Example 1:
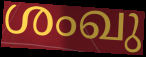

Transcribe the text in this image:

ശംഖു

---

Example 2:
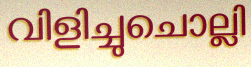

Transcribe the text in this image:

വിളിച്ചുചൊല്ലി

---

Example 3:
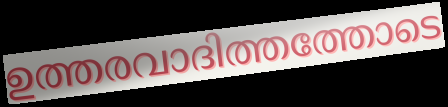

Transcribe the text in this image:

ഉത്തരവാദിത്തത്തോടെ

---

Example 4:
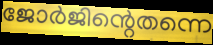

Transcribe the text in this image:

ജോർജിന്റെതന്നെ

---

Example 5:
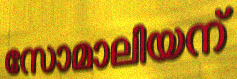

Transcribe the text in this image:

സോമാലിയന്